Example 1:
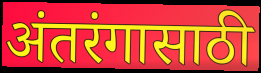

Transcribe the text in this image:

अंतरंगासाठी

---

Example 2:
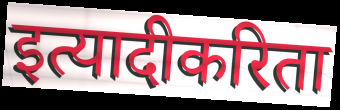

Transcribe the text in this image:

इत्यादीकरिता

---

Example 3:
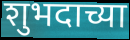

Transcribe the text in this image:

शुभदाच्या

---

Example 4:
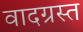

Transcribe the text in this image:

वादग्रस्त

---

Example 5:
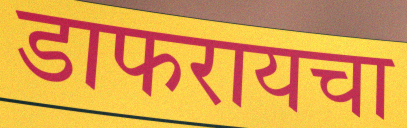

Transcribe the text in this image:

डाफरायचा